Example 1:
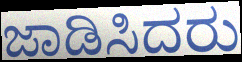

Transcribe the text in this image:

ಜಾಡಿಸಿದರು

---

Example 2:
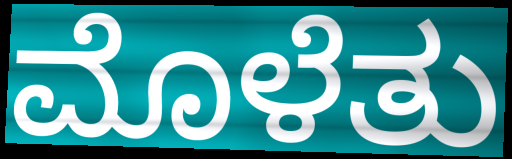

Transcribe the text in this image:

ಮೊಳೆತು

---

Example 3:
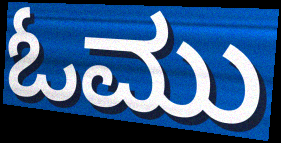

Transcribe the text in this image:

ಓಮು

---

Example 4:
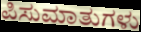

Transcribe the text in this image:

ಪಿಸುಮಾತುಗಳು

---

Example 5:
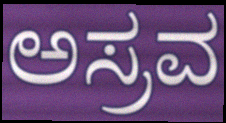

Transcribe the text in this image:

ಅಸ್ರವ